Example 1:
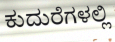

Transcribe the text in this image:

ಕುದುರೆಗಳಲ್ಲಿ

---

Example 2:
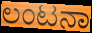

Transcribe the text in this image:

ಲಂಟನಾ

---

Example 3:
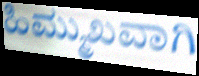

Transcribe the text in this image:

ಹಿಮ್ಮುಖವಾಗಿ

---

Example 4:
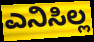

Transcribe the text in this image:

ಎನಿಸಿಲ್ಲ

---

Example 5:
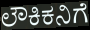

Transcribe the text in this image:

ಲೌಕಿಕನಿಗೆ